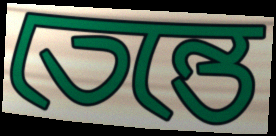
তেন্তে